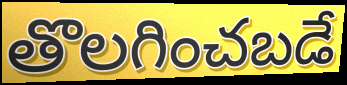
తొలగించబడే